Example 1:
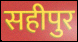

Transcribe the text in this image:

सहीपुर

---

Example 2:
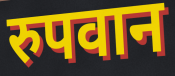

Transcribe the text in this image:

रुपवान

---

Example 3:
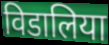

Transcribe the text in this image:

विडालिया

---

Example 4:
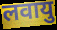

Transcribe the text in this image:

लवायु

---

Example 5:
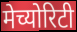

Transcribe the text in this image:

मेच्योरिटी